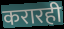
करारही